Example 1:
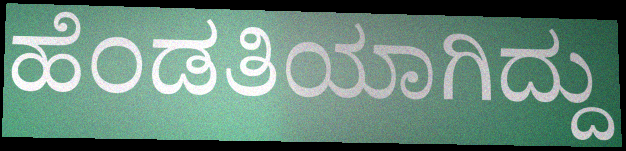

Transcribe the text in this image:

ಹೆಂಡತಿಯಾಗಿದ್ದು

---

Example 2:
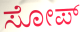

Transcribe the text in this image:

ಸೋಪ್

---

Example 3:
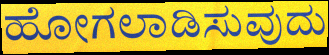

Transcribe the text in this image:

ಹೋಗಲಾಡಿಸುವುದು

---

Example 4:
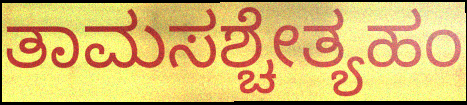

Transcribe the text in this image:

ತಾಮಸಶ್ಚೇತ್ಯಹಂ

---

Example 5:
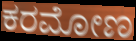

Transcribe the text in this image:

ಕರಮೋಣ